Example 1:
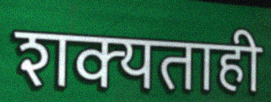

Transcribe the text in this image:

शक्‍यताही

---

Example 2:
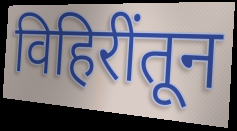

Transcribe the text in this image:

विहिरींतून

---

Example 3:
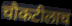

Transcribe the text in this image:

चौकटीलाच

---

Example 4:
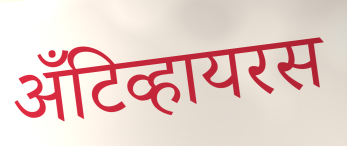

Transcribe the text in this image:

अँटिव्हायरस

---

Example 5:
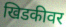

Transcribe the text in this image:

खिडकीवर